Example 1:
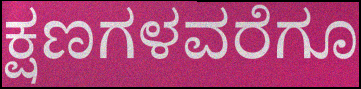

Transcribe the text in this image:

ಕ್ಷಣಗಳವರೆಗೂ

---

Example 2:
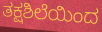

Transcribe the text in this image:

ತಕ್ಷಶಿಲೆಯಿಂದ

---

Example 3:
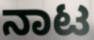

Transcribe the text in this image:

ನಾಟ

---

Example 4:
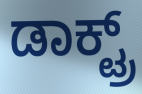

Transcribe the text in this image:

ಡಾಕ್ಟ್ರ್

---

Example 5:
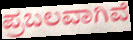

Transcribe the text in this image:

ಪ್ರಬಲವಾಗಿವೆ